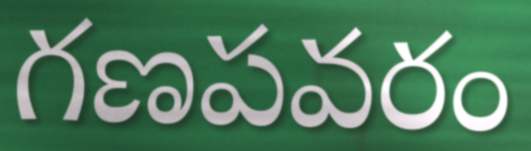
గణపవరం